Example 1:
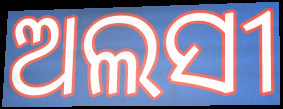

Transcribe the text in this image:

ଅଲସୀ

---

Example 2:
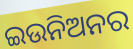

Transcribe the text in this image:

ଇଉନିଅନର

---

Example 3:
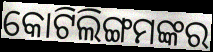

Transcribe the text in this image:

କୋଟିଲିଙ୍ଗମଙ୍କର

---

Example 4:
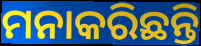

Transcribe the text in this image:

ମନାକରିଛନ୍ତି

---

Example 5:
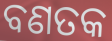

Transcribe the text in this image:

ବଣତକ